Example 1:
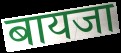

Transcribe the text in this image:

बायजा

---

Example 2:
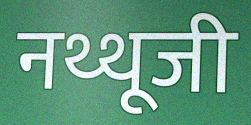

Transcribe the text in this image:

नथ्थूजी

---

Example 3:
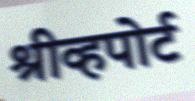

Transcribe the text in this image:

श्रीव्हपोर्ट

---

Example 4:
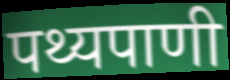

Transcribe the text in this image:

पथ्यपाणी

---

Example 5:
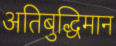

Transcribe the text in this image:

अतिबुद्धिमान